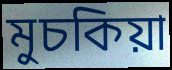
মুচকিয়া